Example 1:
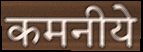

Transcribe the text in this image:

कमनीये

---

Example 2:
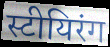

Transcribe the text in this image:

स्टीयिरंग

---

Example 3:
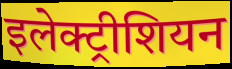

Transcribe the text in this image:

इलेक्‍ट्रीशियन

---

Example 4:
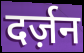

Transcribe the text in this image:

दर्ज़न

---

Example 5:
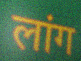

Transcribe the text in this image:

लांग